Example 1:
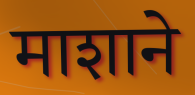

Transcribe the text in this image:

माशाने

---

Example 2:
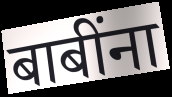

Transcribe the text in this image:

बाबींना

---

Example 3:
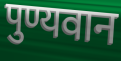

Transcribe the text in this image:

पुण्यवान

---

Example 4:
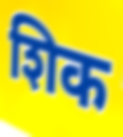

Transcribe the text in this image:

शिक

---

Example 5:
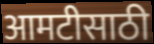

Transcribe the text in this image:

आमटीसाठी